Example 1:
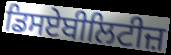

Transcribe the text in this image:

ਡਿਸਏਬੀਲਿਟੀਜ਼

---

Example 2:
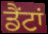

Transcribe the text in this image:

ਡੈਂਟਾਂ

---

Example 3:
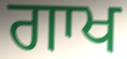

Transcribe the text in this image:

ਗਾਖ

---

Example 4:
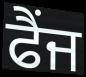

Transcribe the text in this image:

ਫੈਂਜ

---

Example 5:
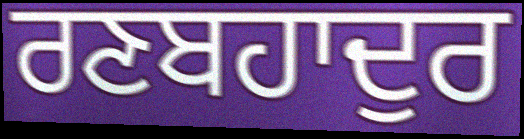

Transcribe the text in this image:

ਰਣਬਹਾਦੁਰ